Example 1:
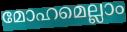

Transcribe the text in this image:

മോഹമെല്ലാം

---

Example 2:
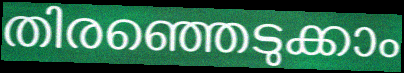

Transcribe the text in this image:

തിരഞ്ഞെടുക്കാം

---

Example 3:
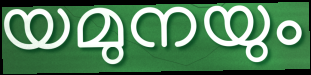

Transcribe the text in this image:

യമുനയും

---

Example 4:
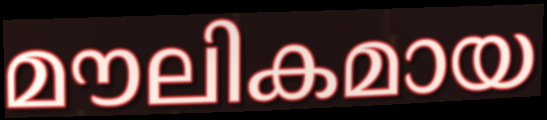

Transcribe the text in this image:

മൗലികമായ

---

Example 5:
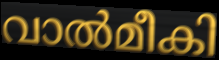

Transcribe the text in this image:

വാൽമീകി